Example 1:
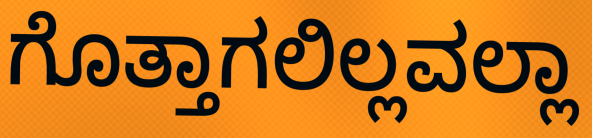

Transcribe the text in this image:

ಗೊತ್ತಾಗಲಿಲ್ಲವಲ್ಲಾ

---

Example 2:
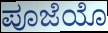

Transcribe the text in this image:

ಪೂಜೆಯೊ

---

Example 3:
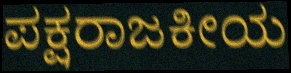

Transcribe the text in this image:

ಪಕ್ಷರಾಜಕೀಯ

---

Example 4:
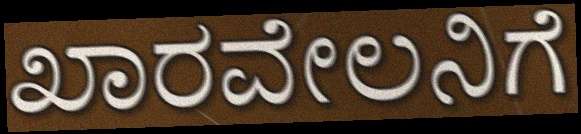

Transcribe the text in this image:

ಖಾರವೇಲನಿಗೆ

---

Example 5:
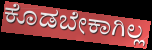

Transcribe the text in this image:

ಕೊಡಬೇಕಾಗಿಲ್ಲ